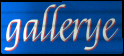
gallerye